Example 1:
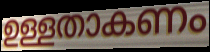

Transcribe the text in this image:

ഉള്ളതാകണം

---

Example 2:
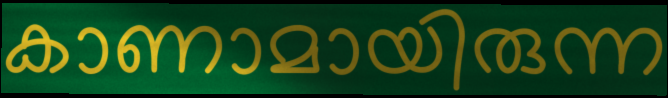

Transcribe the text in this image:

കാണാമായിരുന്ന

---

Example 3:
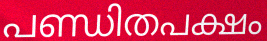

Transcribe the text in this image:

പണ്ഡിതപക്ഷം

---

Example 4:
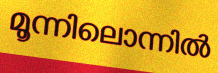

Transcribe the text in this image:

മൂന്നിലൊന്നിൽ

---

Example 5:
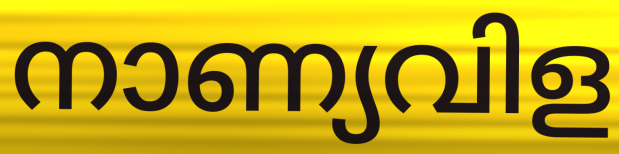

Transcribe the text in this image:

നാണ്യവിള